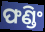
ଫଣ୍ଡିଂ